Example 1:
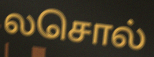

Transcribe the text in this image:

லசொல்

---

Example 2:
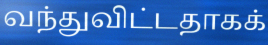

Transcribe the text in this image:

வந்துவிட்டதாகக்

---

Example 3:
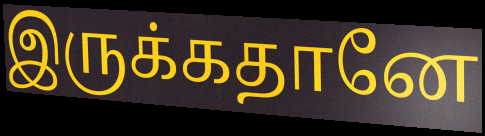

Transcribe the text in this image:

இருக்கதானே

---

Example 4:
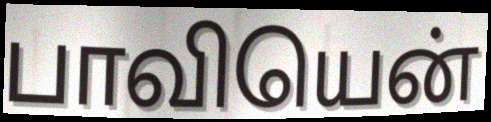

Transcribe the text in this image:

பாவியென்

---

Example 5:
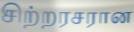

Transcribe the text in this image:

சிற்றரசரான